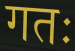
गतः